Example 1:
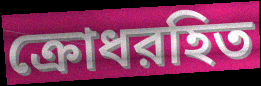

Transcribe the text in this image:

ক্রোধরহিত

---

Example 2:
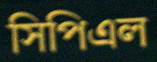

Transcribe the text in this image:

সিপিএল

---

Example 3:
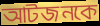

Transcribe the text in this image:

আটজনকে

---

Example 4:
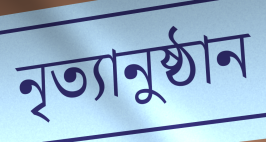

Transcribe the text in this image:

নৃত্যানুষ্ঠান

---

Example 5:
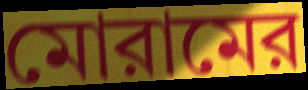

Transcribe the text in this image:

মোরামের